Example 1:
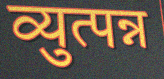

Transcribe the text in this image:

व्युत्पन्न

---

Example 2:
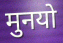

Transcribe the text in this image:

मुनयो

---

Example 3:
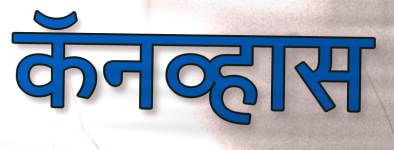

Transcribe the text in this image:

कॅनव्हास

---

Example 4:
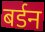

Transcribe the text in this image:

बर्डन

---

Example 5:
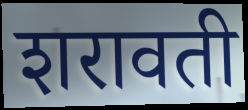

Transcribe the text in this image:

शरावती